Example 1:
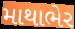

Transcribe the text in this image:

માથાભેર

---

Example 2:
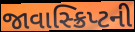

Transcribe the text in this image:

જાવાસ્ક્રિપ્ટની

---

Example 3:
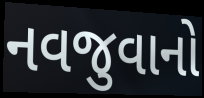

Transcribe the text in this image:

નવજુવાનો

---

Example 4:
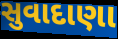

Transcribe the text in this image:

સુવાદાણા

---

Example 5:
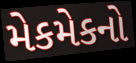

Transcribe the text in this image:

મેકમેકનો